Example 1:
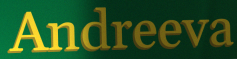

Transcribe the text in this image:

Andreeva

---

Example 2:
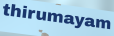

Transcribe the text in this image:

thirumayam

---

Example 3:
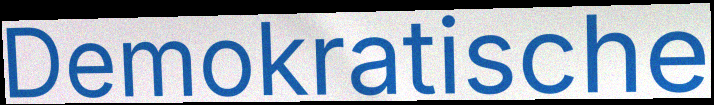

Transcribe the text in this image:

Demokratische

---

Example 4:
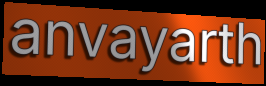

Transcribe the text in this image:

anvayarth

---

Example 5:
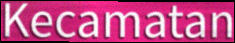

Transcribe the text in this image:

Kecamatan